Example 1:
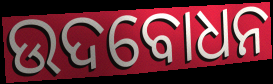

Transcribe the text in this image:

ଉଦବୋଧନ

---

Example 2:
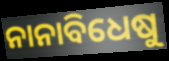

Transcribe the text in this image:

ନାନାବିଧେଷୁ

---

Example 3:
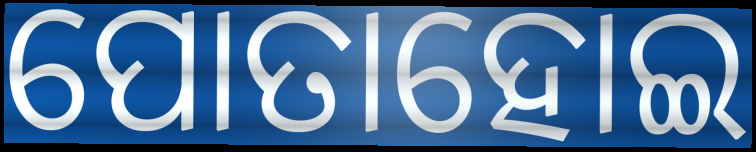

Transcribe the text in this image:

ପୋତାହୋଇ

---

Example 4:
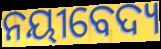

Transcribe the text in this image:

ନୟୀବେଦ୍ୟ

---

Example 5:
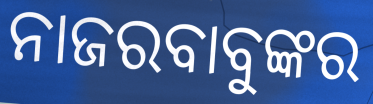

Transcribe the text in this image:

ନାଜରବାବୁଙ୍କର